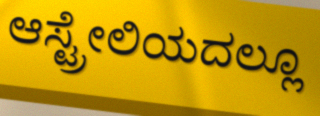
ಆಸ್ಟ್ರೇಲಿಯದಲ್ಲೂ